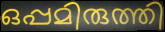
ഒപ്പമിരുത്തി